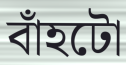
বাঁহটো